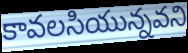
కావలసియున్నవని